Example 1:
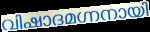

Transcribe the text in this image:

വിഷാദമഗ്നനായി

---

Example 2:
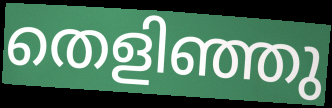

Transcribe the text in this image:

തെളിഞ്ഞു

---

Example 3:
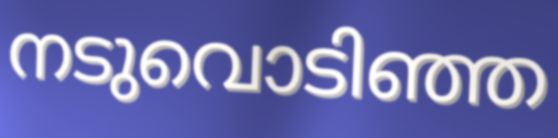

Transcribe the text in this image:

നടുവൊടിഞ്ഞ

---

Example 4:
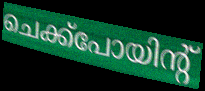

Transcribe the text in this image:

ചെക്ക്പോയിന്റ്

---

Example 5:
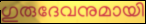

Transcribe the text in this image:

ഗുരുദേവനുമായി